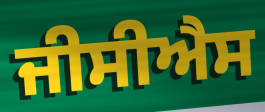
ਜੀਸੀਐਸ